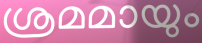
ശ്രമമായും